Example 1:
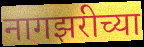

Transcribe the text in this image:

नागझरीच्या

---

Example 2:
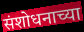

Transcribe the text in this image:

संशोधनाच्या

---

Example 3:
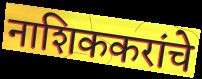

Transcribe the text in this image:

नाशिककरांचे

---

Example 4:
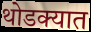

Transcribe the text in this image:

थोडक्‍यात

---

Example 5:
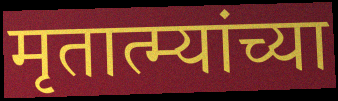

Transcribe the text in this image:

मृतात्म्यांच्या